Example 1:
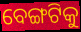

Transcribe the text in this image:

ବେଙ୍ଗଟିକୁ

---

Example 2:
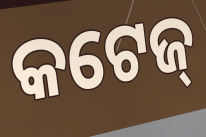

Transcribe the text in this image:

କଟେଜ୍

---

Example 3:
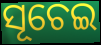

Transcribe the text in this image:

ସୂଚେଇ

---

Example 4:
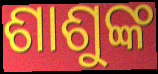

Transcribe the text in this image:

ଶାଶୁଙ୍କ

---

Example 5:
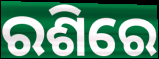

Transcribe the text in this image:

ରଶିରେ